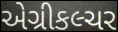
એગ્રીકલ્ચર